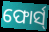
ଫୋର୍ସ୍